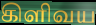
கிளிவய